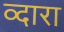
व्दारा